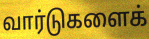
வார்டுகளைக்